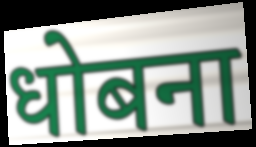
धोबना